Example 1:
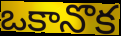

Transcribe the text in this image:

ఒకానొక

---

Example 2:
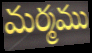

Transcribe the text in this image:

మర్మము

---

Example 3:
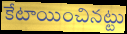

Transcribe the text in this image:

కేటాయించినట్టు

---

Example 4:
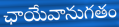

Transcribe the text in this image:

ఛాయేవానుగతం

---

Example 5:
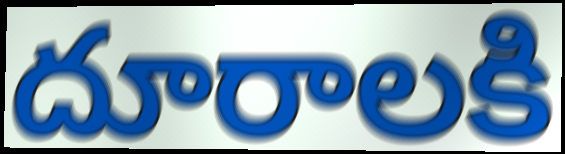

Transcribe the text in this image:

దూరాలకి